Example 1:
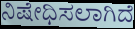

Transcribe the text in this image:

ನಿಷೇಧಿಸಲಾಗಿದೆ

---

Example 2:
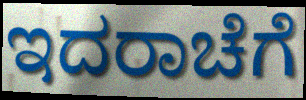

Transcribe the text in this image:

ಇದರಾಚೆಗೆ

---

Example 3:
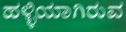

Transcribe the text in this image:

ಹಳ್ಳಿಯಾಗಿರುವ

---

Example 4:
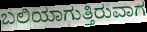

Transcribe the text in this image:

ಬಲಿಯಾಗುತ್ತಿರುವಾಗ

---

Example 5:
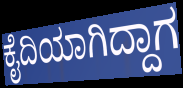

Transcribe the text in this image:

ಕೈದಿಯಾಗಿದ್ದಾಗ